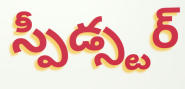
స్పీడ్స్టర్